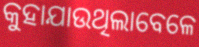
କୁହାଯାଉଥିଲାବେଳେ